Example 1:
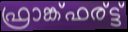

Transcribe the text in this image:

ഫ്രാങ്ക്ഫര്ട്ട്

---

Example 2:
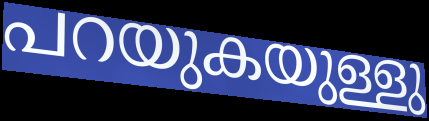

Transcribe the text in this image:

പറയുകയുള്ളു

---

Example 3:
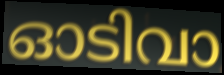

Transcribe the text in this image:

ഓടിവാ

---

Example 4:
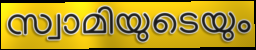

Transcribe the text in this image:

സ്വാമിയുടെയും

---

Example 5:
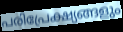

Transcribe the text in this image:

പരിപ്രേക്ഷ്യങ്ങളും